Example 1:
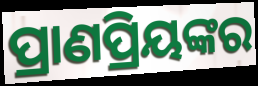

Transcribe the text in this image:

ପ୍ରାଣପ୍ରିୟଙ୍କର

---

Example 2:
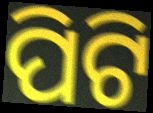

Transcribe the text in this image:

ପିଟି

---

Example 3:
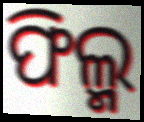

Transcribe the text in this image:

ଫିଲ୍ମ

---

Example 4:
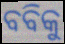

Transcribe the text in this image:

ବବିକୁ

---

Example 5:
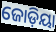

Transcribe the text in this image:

ଜୋଡ଼ିୟା